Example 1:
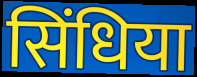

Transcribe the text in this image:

सिंधिया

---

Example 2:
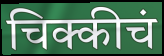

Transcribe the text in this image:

चिक्कीचं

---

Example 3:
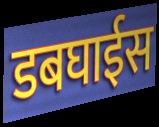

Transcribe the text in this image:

डबघाईस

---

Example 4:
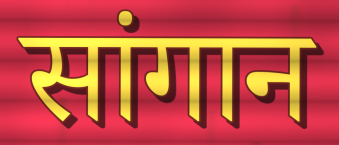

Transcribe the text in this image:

सांगान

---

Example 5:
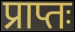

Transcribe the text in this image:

प्राप्तः